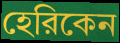
হেরিকেন